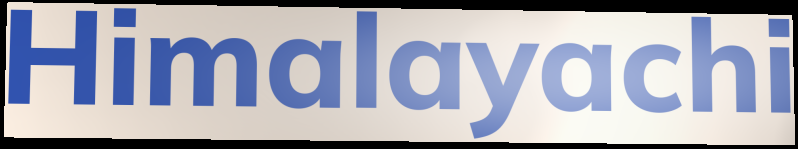
Himalayachi